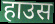
हाउस